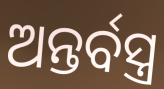
ଅନ୍ତର୍ବସ୍ତ୍ର